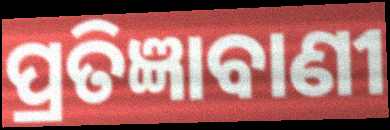
ପ୍ରତିଜ୍ଞାବାଣୀ